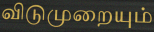
விடுமுறையும்